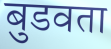
बुडवता